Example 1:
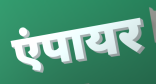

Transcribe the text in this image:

एंपायर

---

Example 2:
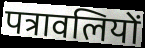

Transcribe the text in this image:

पत्रावलियों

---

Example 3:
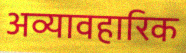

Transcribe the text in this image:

अव्यावहारिक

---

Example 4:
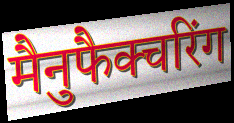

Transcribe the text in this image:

मैनुफैक्चरिंग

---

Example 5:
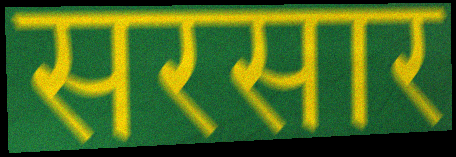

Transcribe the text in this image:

सरसार